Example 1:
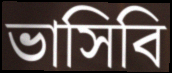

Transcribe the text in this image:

ভাসিবি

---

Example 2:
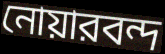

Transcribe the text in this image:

নোয়ারবন্দ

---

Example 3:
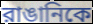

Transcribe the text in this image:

রাঙানিকে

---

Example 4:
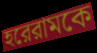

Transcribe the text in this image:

হরেরামকে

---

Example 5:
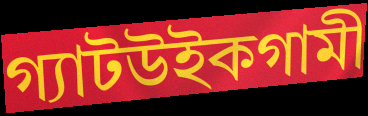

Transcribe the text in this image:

গ্যাটউইকগামী